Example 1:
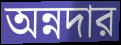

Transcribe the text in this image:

অন্নদার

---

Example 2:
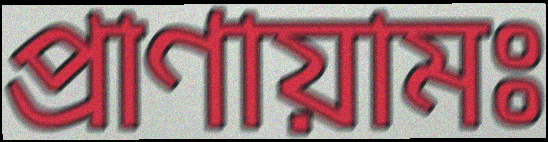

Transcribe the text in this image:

প্রাণায়ামঃ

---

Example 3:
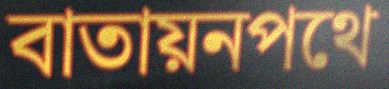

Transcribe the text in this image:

বাতায়নপথে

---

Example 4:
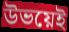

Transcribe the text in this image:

উভয়েই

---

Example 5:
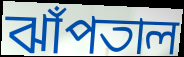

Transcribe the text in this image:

ঝাঁপতাল